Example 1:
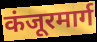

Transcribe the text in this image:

कंजूरमार्ग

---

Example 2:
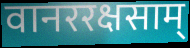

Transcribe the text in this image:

वानररक्षसाम्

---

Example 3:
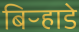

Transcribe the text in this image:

बिऱ्हाडे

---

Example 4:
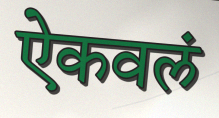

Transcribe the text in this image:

ऐकवलं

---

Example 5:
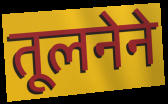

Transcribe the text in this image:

तूलनेने